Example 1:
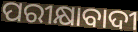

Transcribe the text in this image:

ପରୀକ୍ଷାବାଦୀ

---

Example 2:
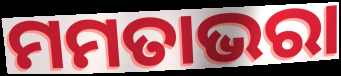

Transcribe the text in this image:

ମମତାଭରା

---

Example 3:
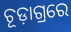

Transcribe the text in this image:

ଚୂଡ଼ାଗ୍ରରେ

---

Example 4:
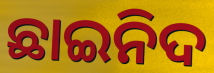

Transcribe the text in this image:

ଛାଇନିଦ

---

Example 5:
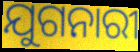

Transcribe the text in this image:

ଯୁଗନାରୀ